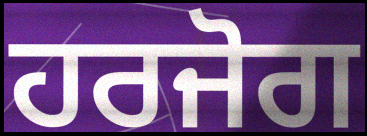
ਹਰਜੋਗ